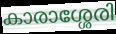
കാരാശ്ശേരി